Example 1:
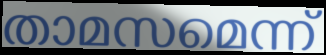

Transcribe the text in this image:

താമസമെന്ന്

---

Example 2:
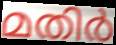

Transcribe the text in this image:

മതിർ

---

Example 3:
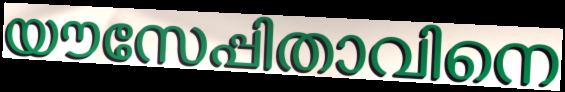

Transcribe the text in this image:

യൗസേപ്പിതാവിനെ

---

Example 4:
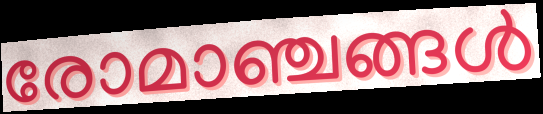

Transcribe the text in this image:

രോമാഞ്ചങ്ങൾ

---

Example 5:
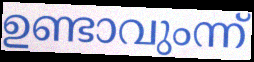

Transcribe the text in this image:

ഉണ്ടാവുംന്ന്